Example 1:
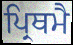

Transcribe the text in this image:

ਪ੍ਰਿਥਮੈ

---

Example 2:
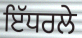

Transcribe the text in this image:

ਇੱਧਰਲੇ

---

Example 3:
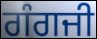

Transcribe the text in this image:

ਗੰਗਜੀ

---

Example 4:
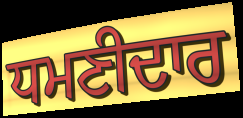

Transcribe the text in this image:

ਧਮਣੀਦਾਰ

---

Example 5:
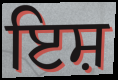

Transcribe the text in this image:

ਇਸ਼